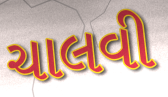
ચાલવી